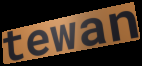
tewan